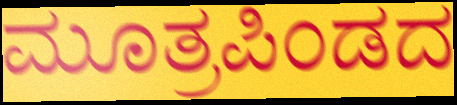
ಮೂತ್ರಪಿಂಡದ